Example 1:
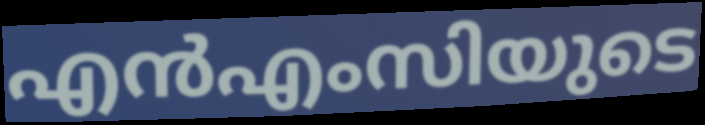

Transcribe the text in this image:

എൻഎംസിയുടെ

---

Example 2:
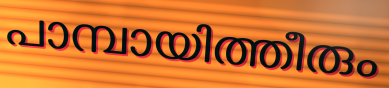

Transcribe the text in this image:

പാമ്പായിത്തീരും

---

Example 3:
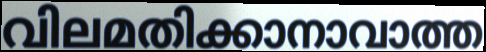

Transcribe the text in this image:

വിലമതിക്കാനാവാത്ത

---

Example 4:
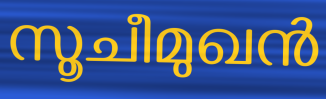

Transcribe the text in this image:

സൂചീമുഖൻ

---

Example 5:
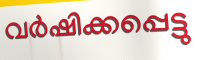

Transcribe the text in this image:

വർഷിക്കപ്പെട്ടു